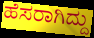
ಹೆಸರಾಗಿದ್ದು